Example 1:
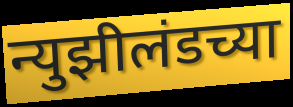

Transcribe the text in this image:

न्युझीलंडच्या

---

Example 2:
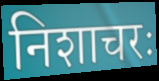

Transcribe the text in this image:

निशाचरः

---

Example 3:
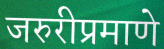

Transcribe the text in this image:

जरुरीप्रमाणे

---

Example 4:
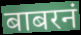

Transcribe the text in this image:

बाबरनं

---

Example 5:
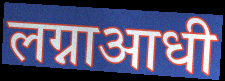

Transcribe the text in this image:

लग्नाआधी